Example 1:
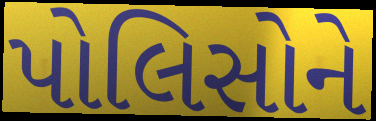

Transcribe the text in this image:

પોલિસોને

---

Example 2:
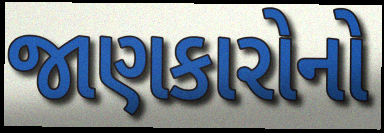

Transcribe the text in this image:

જાણકારોનો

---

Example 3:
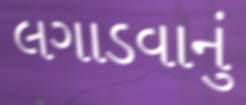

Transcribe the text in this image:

લગાડવાનું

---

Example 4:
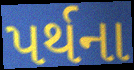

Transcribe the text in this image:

પર્થના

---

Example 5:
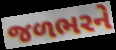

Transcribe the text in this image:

જળભરને